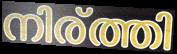
നിര്ത്തി